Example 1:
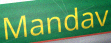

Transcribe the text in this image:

Mandav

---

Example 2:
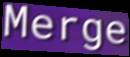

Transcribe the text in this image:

Merge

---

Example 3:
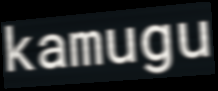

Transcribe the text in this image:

kamugu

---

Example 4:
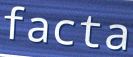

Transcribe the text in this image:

facta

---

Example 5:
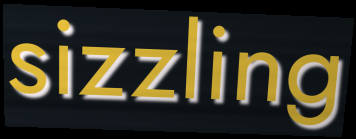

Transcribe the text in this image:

sizzling